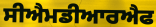
ਸੀਐਮਡੀਆਰਐਫ